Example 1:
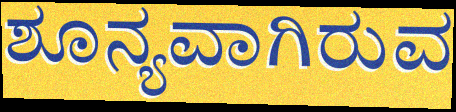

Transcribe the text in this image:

ಶೂನ್ಯವಾಗಿರುವ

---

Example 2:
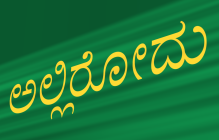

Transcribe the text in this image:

ಅಲ್ಲಿರೋದು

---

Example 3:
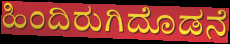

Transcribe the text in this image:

ಹಿಂದಿರುಗಿದೊಡನೆ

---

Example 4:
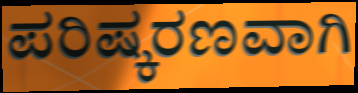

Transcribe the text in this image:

ಪರಿಷ್ಕರಣವಾಗಿ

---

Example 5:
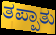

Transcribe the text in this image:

ತಪ್ಪಾತು